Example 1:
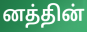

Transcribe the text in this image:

னத்தின்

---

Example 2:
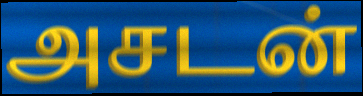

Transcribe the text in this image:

அசடன்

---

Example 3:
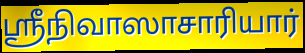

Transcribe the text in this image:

ஸ்ரீநிவாஸாசாரியார்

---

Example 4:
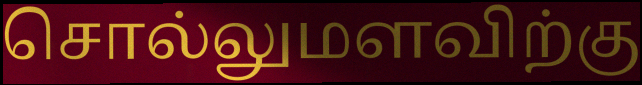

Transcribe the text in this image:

சொல்லுமளவிற்கு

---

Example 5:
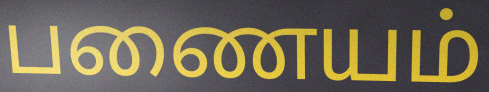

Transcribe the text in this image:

பணையம்